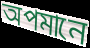
অপমানে